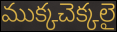
ముక్కచెక్కలై